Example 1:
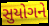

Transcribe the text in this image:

સુયોગને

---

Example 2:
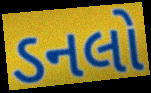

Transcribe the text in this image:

ડનલો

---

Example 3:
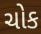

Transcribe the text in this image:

ચોક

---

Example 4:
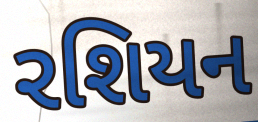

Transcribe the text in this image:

રશિયન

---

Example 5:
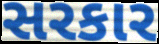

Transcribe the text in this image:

સરકાર